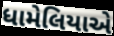
ધામેલિયાએ